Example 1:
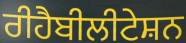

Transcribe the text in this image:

ਰੀਹੈਬੀਲੀਟੇਸ਼ਨ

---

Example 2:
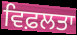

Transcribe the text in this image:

ਵਿਫ਼ਲਤਾ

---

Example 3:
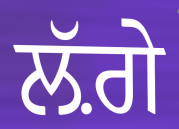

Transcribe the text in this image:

ਲ਼ੱਗੇ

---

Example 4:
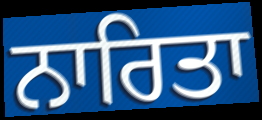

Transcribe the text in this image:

ਨਾਰਿਤਾ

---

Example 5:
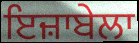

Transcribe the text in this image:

ਇਜ਼ਾਬੇਲਾ